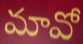
మావో